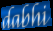
dabhi